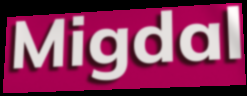
Migdal